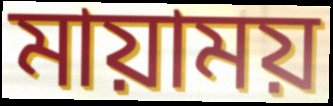
মায়াময়